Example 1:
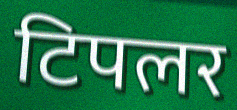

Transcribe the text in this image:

टिपलर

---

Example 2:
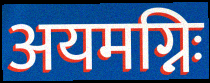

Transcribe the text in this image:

अयमग्निः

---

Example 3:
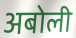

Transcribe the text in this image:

अबोली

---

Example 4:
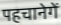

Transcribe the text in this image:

पहचानेगें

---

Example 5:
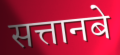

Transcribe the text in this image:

सत्तानबे